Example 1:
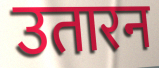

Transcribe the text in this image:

उतारन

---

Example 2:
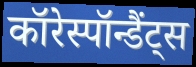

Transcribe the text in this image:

कॉरेस्पॉन्डैंट्स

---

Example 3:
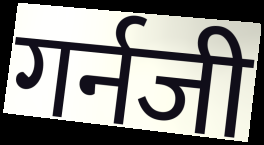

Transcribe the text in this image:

गर्नजी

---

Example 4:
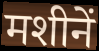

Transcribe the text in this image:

मशीनें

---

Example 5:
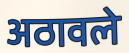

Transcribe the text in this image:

अठावले